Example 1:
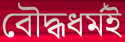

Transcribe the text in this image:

বৌদ্ধধৰ্মই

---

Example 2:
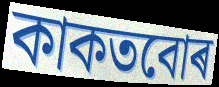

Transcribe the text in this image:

কাকতবোৰ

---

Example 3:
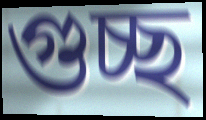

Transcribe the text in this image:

গুচ্ছ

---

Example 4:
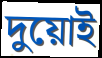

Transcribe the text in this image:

দুয়োই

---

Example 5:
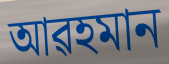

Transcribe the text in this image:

আৱহমান